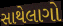
સાથેલાગો